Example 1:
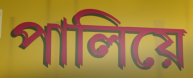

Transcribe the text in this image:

পালিয়ে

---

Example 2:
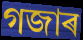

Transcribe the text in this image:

গজাৰ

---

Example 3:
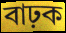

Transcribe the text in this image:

বাঢ়ক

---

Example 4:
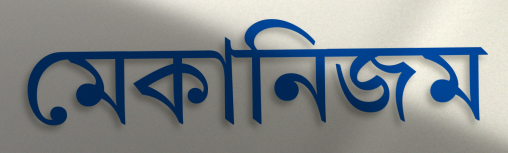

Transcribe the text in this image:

মেকানিজম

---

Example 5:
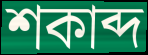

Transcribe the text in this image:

শকাব্দ